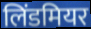
लिंडमियर